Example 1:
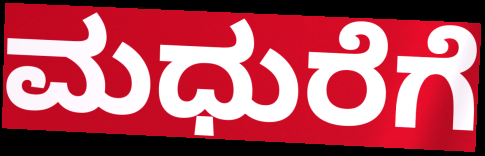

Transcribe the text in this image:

ಮಧುರೆಗೆ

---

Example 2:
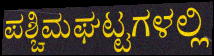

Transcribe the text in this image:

ಪಶ್ಚಿಮಘಟ್ಟಗಳಲ್ಲಿ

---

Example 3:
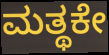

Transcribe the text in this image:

ಮತ್ಥಕೇ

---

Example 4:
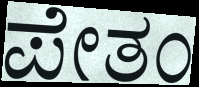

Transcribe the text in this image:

ಪೇತಂ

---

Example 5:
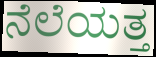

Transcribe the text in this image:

ನೆಲೆಯತ್ತ